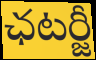
ఛటర్జీ